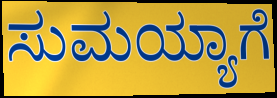
ಸುಮಯ್ಯಾಗೆ